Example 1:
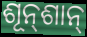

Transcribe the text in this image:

ଶୂନ୍‌ଶାନ୍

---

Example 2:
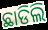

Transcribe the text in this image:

ଛାଡିଲି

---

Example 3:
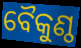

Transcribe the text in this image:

ବୈକୁଣ୍ଠ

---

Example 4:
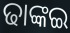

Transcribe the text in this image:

ଢାଙ୍କଇ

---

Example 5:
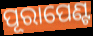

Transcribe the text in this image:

ପୂରାପେଣ୍ଟ